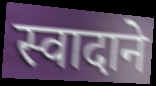
स्वादाने